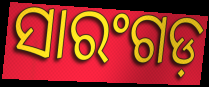
ସାରଂଗଡ଼